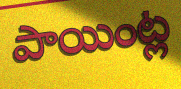
పాయింట్ల